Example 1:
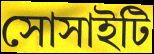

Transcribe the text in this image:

সোসাইটি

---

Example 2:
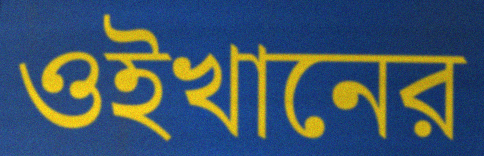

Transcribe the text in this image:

ওইখানের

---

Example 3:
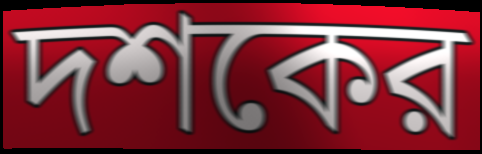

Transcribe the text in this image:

দশকের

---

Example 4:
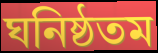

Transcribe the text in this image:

ঘনিষ্ঠতম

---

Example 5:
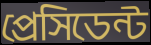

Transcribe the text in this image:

প্রেসিডেন্ট